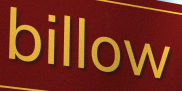
billow